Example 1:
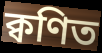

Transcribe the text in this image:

ক্বণিত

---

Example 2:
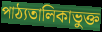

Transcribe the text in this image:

পাঠ্যতালিকাভুক্ত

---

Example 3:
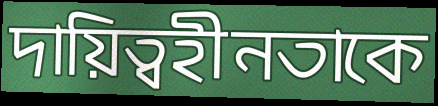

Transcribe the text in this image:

দায়িত্বহীনতাকে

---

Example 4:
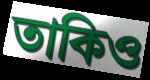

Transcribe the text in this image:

তাকিও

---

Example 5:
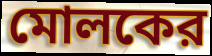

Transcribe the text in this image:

মোলকের